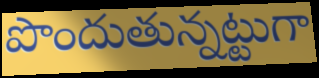
పొందుతున్నట్టుగా